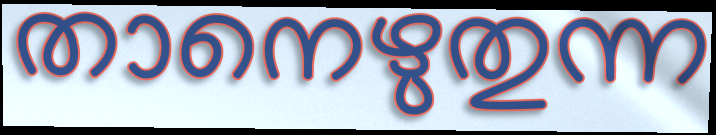
താനെഴുതുന്ന